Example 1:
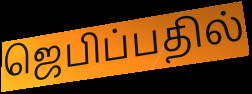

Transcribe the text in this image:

ஜெபிப்பதில்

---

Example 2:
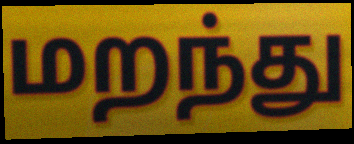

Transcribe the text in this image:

மறந்து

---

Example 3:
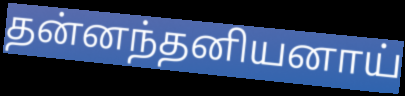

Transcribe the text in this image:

தன்னந்தனியனாய்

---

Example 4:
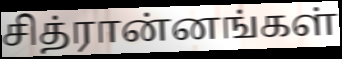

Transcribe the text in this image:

சித்ரான்னங்கள்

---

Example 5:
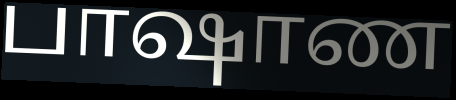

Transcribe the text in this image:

பாஷாண